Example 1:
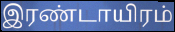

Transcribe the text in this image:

இரண்டாயிரம்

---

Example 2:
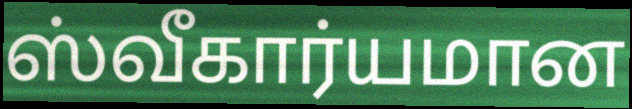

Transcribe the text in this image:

ஸ்வீகார்யமான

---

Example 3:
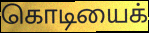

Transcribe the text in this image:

கொடியைக்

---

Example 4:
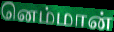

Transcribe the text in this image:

னெம்மான்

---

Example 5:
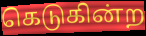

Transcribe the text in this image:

கெடுகின்ற